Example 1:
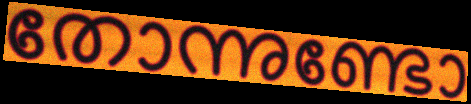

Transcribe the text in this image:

തോന്നുണ്ടോ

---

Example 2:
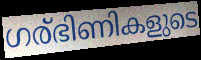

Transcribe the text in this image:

ഗര്ഭിണികളുടെ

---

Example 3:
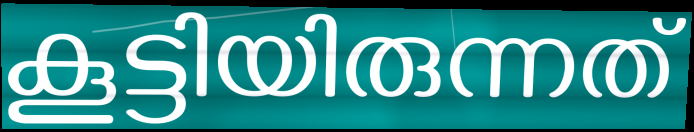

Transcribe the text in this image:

കൂട്ടിയിരുന്നത്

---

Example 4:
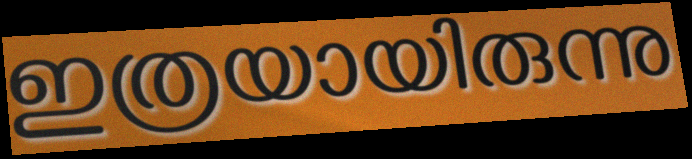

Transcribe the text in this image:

ഇത്രയായിരുന്നു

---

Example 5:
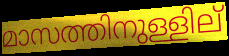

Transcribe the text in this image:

മാസത്തിനുള്ളില്